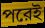
পরেই